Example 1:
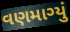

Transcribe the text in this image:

વણમાગ્યું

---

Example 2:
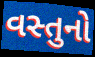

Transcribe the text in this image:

વસ્તુનો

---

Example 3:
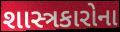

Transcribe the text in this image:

શાસ્ત્રકારોના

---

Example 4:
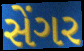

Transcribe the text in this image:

સેંગર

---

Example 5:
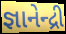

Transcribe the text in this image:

જ્ઞાનેન્દ્રી